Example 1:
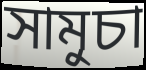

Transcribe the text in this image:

সামুচা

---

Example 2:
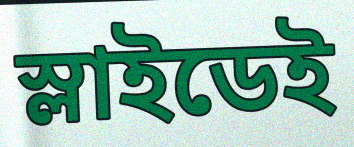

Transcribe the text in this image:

স্লাইডেই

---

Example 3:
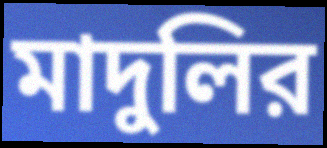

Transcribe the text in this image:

মাদুলির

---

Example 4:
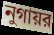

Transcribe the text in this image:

নুগায়র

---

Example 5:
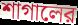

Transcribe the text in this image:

শাগালের